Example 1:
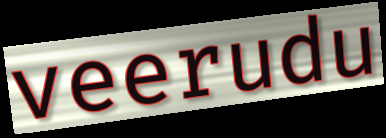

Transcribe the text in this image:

veerudu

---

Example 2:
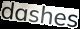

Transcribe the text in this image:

dashes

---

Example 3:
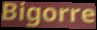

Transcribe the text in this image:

Bigorre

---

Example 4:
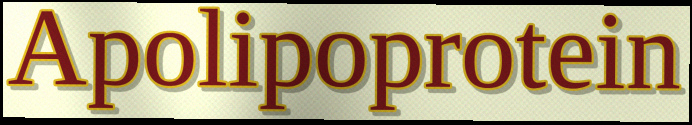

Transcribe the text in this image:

Apolipoprotein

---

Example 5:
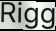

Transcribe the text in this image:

Rigg